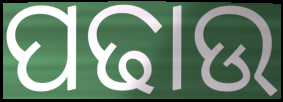
ପଢାଉ